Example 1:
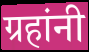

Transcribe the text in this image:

ग्रहांनी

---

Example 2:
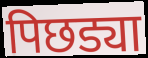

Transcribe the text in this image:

पिछड्या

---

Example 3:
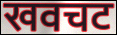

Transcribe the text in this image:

खवचट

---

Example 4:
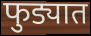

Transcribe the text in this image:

फुड्यात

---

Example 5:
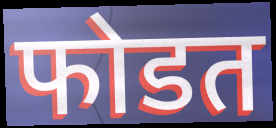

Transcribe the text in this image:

फोडत